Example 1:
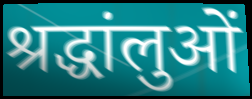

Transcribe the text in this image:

श्रद्धांलुओं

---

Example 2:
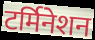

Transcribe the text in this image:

टर्मिनेशन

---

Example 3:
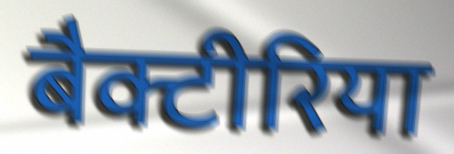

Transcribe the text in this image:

बैक्टीरिया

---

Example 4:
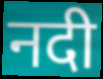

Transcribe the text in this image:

नदी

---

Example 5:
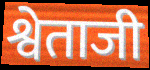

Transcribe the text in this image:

श्वेताजी